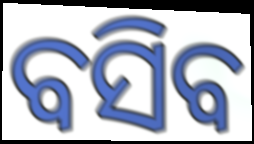
ବସିବ